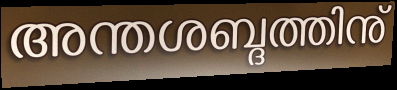
അന്തശബ്ദത്തിനു്